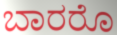
ಬಾರರೊ